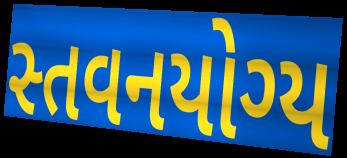
સ્તવનયોગ્ય